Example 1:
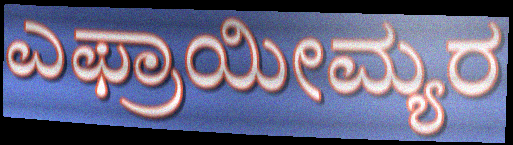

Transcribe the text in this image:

ಎಫ್ರಾಯೀಮ್ಯರ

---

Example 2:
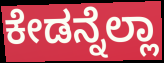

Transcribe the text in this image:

ಕೇಡನ್ನೆಲ್ಲಾ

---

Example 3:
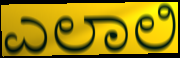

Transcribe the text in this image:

ಎಲಾಲಿ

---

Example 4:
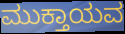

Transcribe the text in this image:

ಮುಕ್ತಾಯವ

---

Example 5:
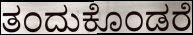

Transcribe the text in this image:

ತಂದುಕೊಂಡರೆ